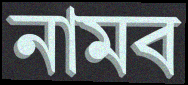
নামব